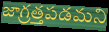
జాగ్రత్తపడమని